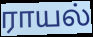
ராயல்